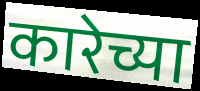
कारेच्या